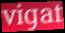
vigat